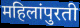
महिलांपुरती